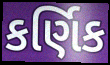
કર્ણિક